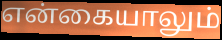
என்கையாலும்